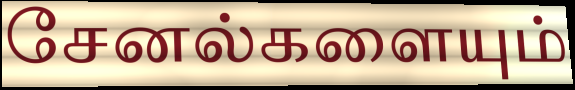
சேனல்களையும்